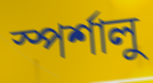
স্পর্শালু